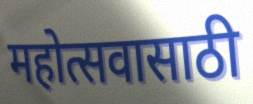
महोत्सवासाठी